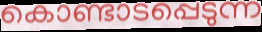
കൊണ്ടാടപ്പെടുന്ന